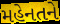
મહેનતને